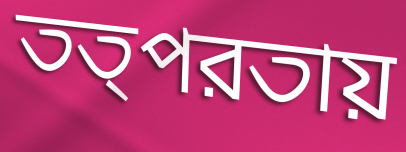
তত্পরতায়